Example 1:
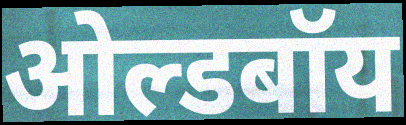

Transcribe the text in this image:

ओल्डबॉय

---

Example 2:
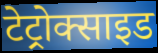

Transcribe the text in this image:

टेट्रोक्साइड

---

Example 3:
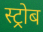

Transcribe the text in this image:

स्ट्रोब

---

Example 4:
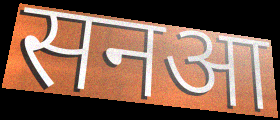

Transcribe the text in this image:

सनआ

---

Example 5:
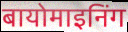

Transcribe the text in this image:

बायोमाइनिंग